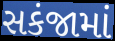
સકંજામાં